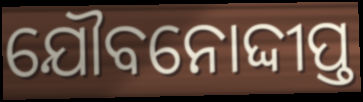
ଯୌବନୋଦ୍ଦୀପ୍ତ